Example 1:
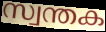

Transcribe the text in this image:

സ്വന്തക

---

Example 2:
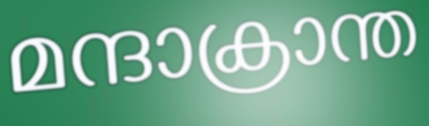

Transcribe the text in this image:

മന്ദാക്രാന്ത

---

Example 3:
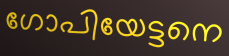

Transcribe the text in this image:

ഗോപിയേട്ടനെ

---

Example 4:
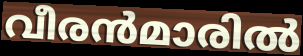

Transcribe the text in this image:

വീരൻമാരിൽ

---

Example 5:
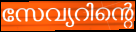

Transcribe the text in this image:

സേവ്യറിന്റെ